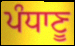
ਪੰਧਾਣੂ